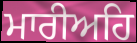
ਮਾਰੀਅਹਿ